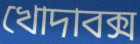
খোদাবক্স